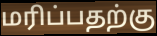
மரிப்பதற்கு